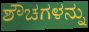
ಶೌಚಗಳನ್ನು